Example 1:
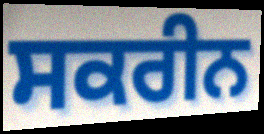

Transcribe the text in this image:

ਸਕਰੀਨ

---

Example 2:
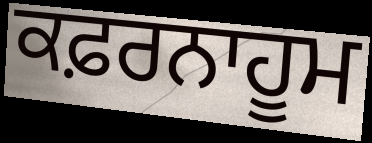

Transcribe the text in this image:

ਕਫ਼ਰਨਾਹੂਮ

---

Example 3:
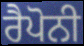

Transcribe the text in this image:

ਰੈਪੋਨੀ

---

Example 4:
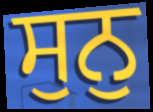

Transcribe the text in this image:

ਸੁਨੁ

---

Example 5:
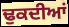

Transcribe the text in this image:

ਢੁਕਦੀਆਂ